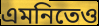
এমনিতেও